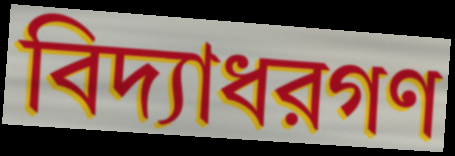
বিদ্যাধরগণ